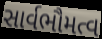
સાર્વભૌમત્વ